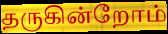
தருகின்றோம்